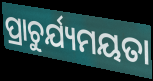
ପ୍ରାଚୁର୍ଯ୍ୟମୟତା